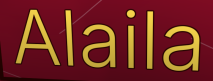
Alaila